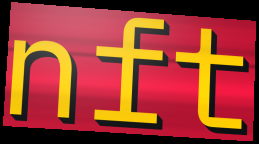
nft